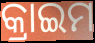
କ୍ରାଇମ